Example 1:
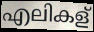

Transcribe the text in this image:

എലികള്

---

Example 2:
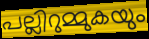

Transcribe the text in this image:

പല്ലിറുമ്മുകയും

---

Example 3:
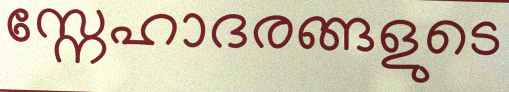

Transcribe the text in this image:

സ്നേഹാദരങ്ങളുടെ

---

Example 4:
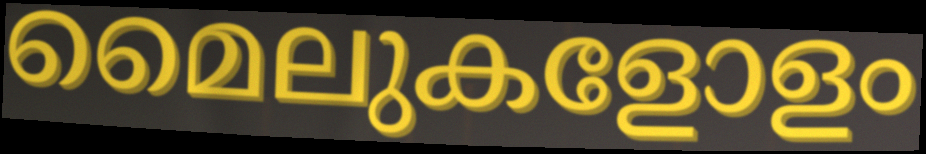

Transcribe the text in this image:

മൈലുകളോളം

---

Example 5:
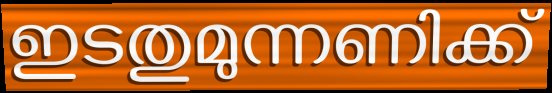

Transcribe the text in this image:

ഇടതുമുന്നണിക്ക്